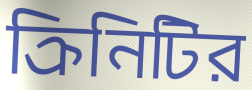
ক্রিনিটির